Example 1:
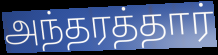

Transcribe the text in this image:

அந்தரத்தார்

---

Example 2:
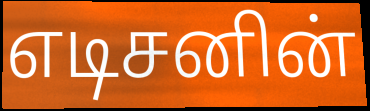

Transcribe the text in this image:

எடிசனின்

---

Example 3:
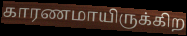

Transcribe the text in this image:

காரணமாயிருக்கிற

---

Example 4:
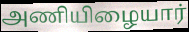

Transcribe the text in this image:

அணியிழையார்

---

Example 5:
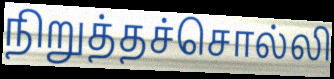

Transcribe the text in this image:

நிறுத்தச்சொல்லி